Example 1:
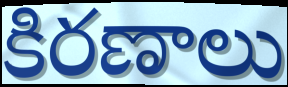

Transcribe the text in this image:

కిరణాలు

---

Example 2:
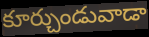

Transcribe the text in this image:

కూర్చుండువాడా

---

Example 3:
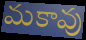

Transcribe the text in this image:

మకావు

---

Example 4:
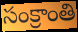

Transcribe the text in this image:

సంక్రాంతి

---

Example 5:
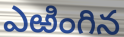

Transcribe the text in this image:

ఎఱింగిన